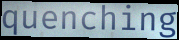
quenching